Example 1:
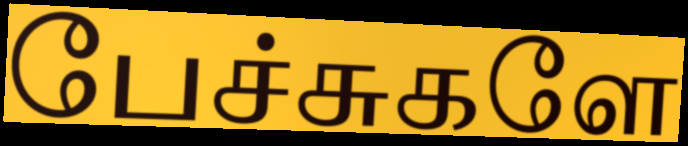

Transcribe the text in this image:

பேச்சுகளே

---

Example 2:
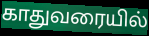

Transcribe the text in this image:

காதுவரையில்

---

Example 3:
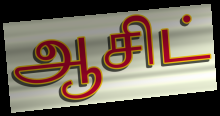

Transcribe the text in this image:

ஆசிட்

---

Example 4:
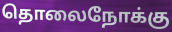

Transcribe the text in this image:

தொலைநோக்கு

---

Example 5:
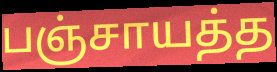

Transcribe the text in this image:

பஞ்சாயத்த